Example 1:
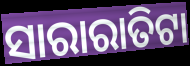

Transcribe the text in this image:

ସାରାରାତିଟା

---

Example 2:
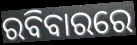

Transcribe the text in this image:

ରବିବାରରେ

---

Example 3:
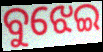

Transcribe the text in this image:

ବୁଝେଇ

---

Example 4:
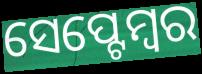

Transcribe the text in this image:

ସେପ୍ଟେମ୍ୱର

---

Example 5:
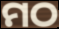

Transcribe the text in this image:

ମଠ